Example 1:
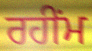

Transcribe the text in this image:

ਰਹੀਂਮ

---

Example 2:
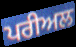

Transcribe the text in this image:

ਪਰੀਅਲ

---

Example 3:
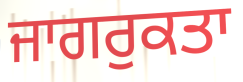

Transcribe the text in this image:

ਜਾਗਰੁਕਤਾ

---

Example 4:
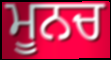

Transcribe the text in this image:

ਮੂਨਚ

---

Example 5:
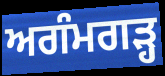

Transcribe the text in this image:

ਅਗੰਮਗੜ੍ਹ